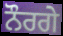
ਨੌਰਗੇ